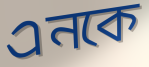
এনকে